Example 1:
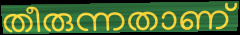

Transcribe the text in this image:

തീരുന്നതാണ്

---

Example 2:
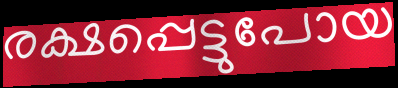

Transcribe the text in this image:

രക്ഷപ്പെട്ടുപോയ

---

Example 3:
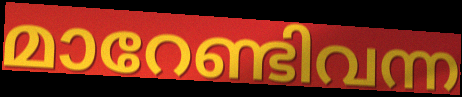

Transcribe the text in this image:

മാറേണ്ടിവന്ന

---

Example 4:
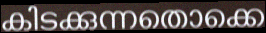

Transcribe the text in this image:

കിടക്കുന്നതൊക്കെ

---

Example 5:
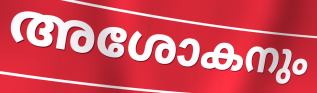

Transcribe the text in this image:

അശോകനും